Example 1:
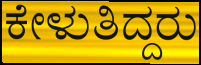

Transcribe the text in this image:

ಕೇಳುತಿದ್ದರು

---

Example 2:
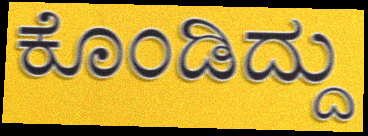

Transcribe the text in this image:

ಕೊಂಡಿದ್ದು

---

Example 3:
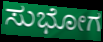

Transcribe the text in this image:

ಸುಭೋಗ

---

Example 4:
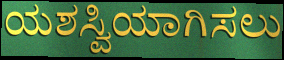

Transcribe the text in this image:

ಯಶಸ್ವಿಯಾಗಿಸಲು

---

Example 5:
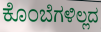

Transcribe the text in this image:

ಕೊಂಬೆಗಳಿಲ್ಲದ